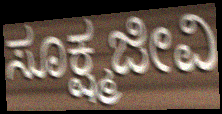
ಸೂಕ್ಷ್ಮಜೀವಿ